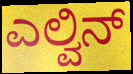
ಎಲ್ವಿನ್